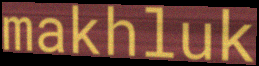
makhluk